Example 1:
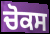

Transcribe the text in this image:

ਚੋਕਸ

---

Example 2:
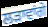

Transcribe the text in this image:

ਲੜਾਵਾਂਗੇ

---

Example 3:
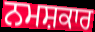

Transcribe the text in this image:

ਨਮਸ਼ਕਾਰ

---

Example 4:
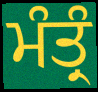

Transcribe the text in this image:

ਮੰਤ੍ਰੰ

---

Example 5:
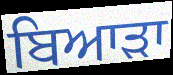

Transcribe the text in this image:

ਬਿਆੜਾ